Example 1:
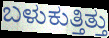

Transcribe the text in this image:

ಬಳುಕುತ್ತಿತ್ತು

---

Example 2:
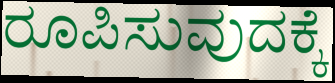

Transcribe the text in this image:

ರೂಪಿಸುವುದಕ್ಕೆ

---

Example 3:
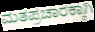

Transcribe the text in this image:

ಮತಪ್ರಚಾರಕ್ಕಾಗಿ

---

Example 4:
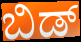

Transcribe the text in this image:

ಬಿಡ್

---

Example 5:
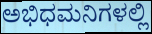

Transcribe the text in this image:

ಅಭಿಧಮನಿಗಳಲ್ಲಿ